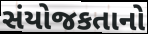
સંયોજકતાનો